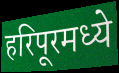
हरिपूरमध्ये